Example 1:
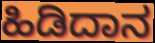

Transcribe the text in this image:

ಹಿಡಿದಾನ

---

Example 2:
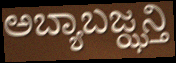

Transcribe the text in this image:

ಅಬ್ಯಾಬಜ್ಝನ್ತಿ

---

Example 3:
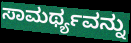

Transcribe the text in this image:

ಸಾಮರ್ಥ್ಯವನ್ನು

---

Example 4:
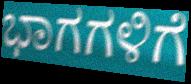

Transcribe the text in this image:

ಭಾಗಗಳಿಗೆ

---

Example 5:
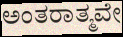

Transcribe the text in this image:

ಅಂತರಾತ್ಮವೇ